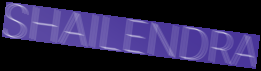
SHAILENDRA